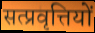
सत्प्रवृत्तियों